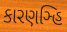
કારણઞ્હિ